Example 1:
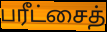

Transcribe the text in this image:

பரீட்சைத்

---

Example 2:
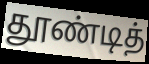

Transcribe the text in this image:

தூண்டித்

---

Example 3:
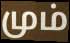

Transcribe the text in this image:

மும்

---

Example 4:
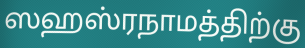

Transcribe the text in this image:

ஸஹஸ்ரநாமத்திற்கு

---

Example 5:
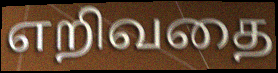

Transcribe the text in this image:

எறிவதை